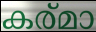
കര്മാ